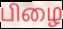
பிழை